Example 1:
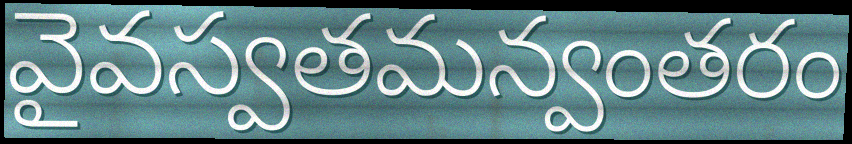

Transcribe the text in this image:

వైవస్వతమన్వంతరం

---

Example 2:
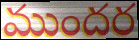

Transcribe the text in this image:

ముందర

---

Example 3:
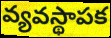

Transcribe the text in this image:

వ్యవస్థాపక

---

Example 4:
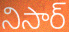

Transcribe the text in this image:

నిసార్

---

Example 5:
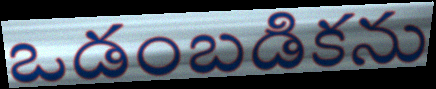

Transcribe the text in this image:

ఒడంబడికను